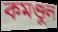
কমণ্ডুল